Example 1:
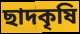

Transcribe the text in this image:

ছাদকৃষি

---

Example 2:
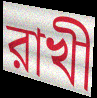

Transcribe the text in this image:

রাখী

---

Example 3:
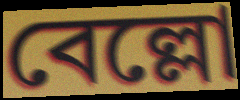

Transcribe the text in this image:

বেল্লো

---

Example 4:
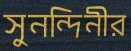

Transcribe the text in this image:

সুনন্দিনীর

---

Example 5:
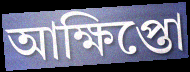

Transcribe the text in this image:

আক্ষিপ্তো